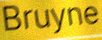
Bruyne